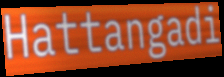
Hattangadi